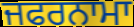
ਜਫਰਨਾਮਾ